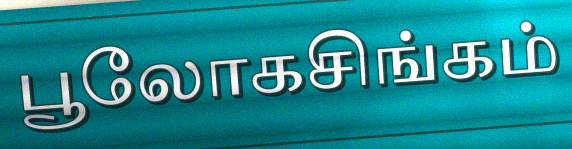
பூலோகசிங்கம்